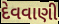
દેવવાણી